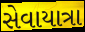
સેવાયાત્રા